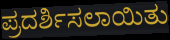
ಪ್ರದರ್ಶಿಸಲಾಯಿತು